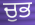
ਚੁਭ